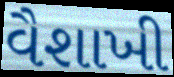
વૈશાખી